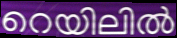
റെയിലിൽ